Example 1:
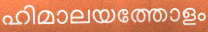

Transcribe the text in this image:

ഹിമാലയത്തോളം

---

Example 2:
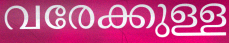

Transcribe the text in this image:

വരേക്കുള്ള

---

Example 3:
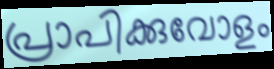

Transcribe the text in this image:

പ്രാപിക്കുവോളം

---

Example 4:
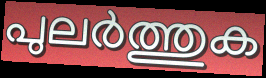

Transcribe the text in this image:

പുലർത്തുക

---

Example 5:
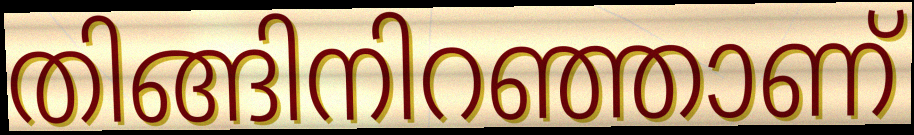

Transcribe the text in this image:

തിങ്ങിനിറഞ്ഞാണ്